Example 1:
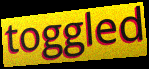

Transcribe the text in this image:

toggled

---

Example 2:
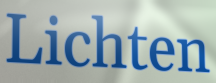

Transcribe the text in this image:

Lichten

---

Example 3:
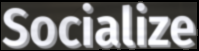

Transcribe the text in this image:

Socialize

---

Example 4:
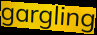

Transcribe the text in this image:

gargling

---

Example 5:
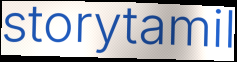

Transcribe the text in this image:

storytamil